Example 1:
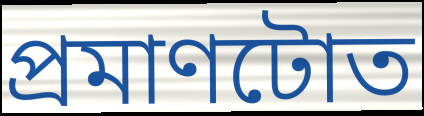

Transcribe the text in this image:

প্ৰমাণটোত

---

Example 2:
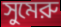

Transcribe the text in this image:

সুমেৰু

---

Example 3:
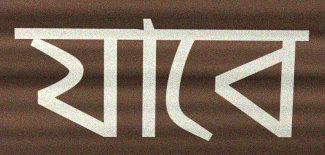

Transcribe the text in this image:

যাবে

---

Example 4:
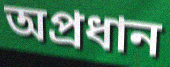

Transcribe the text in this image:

অপ্ৰধান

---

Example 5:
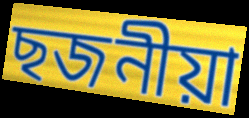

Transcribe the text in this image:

ছজনীয়া